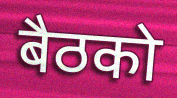
बैठको